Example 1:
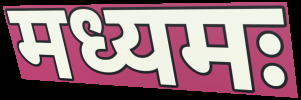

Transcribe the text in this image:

मध्यमः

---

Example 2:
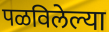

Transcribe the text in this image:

पळविलेल्या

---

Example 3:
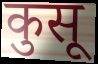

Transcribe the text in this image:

कुसू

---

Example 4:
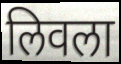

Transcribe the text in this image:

लिवला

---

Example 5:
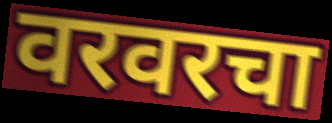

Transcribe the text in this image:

वरवरचा